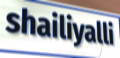
shailiyalli